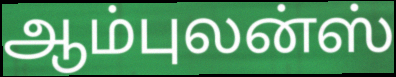
ஆம்புலன்ஸ்